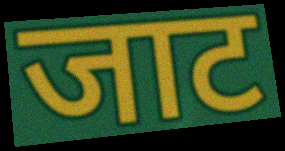
जाट